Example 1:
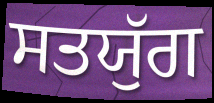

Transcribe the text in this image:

ਸਤਯੁੱਗ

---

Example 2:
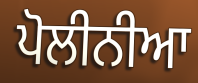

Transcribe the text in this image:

ਪੋਲੀਨੀਆ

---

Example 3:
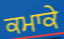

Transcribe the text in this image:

ਕਮਾਕੇ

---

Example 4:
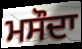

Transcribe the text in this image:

ਮਸੌਦਾ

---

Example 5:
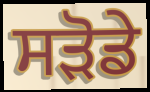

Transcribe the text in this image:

ਸੜੋਡੇ